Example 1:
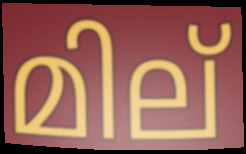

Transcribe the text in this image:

മില്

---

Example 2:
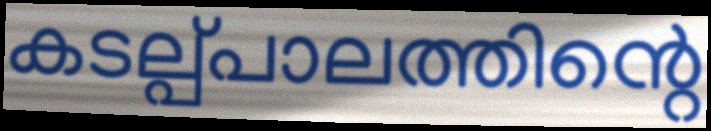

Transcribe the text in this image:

കടല്പ്പാലത്തിന്റെ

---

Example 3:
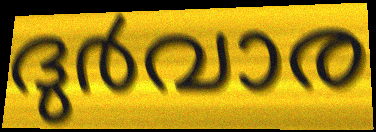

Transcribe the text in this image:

ദുർവാര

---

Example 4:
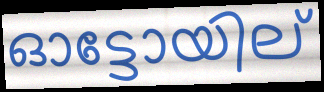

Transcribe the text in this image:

ഓട്ടോയില്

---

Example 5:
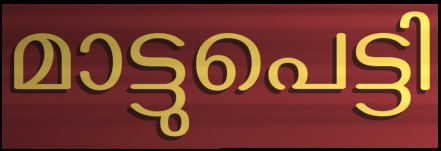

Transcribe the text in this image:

മാട്ടുപെട്ടി